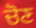
ਚੋਣ